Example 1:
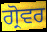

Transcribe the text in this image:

ਗ੍ਰੋਵਰ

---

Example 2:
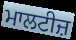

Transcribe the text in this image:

ਮਾਲਟੀਜ਼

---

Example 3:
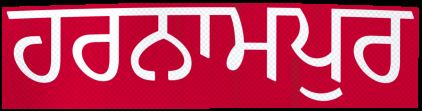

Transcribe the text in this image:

ਹਰਨਾਮਪੁਰ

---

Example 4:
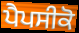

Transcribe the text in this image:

ਪੈਪਸੀਕੋ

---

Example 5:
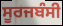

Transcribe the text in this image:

ਸੂਰਜਬੰਸੀ